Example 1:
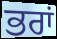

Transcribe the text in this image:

ਭਰਾਂ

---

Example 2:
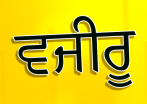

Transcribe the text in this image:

ਵਜੀਰੂ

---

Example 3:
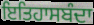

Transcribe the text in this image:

ਇਤਿਹਾਸਬੰਦਾ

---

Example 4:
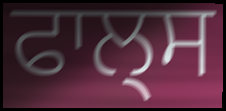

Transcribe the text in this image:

ਫਾਲ੍ਸ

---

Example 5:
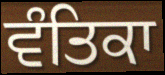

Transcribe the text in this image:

ਵੰਤਿਕਾ